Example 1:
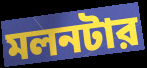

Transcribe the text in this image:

মলনটার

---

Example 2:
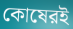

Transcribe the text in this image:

কোষেরই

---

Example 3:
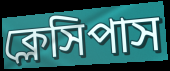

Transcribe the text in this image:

ক্লেসিপাস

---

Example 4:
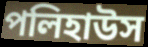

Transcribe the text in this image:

পলিহাউস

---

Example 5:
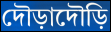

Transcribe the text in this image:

দৌড়াদৌড়ি